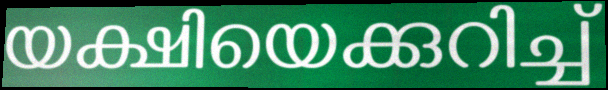
യക്ഷിയെക്കുറിച്ച്